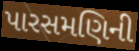
પારસમણિની